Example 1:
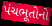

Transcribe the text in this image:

પંચભૂતોનો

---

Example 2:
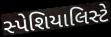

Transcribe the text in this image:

સ્પેશિયાલિસ્ટે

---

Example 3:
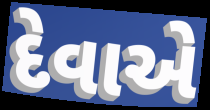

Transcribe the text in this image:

દેવાએ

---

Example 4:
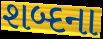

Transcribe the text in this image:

શબ્દના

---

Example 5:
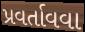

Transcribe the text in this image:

પ્રવર્તાવવા